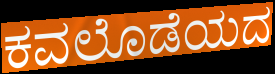
ಕವಲೊಡೆಯದ